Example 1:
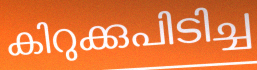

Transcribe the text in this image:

കിറുക്കുപിടിച്ച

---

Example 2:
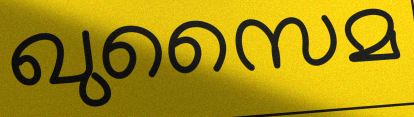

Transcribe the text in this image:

ഖുസൈമ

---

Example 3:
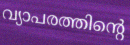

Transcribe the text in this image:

വ്യാപരത്തിന്റെ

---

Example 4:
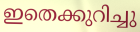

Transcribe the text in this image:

ഇതെക്കുറിച്ചു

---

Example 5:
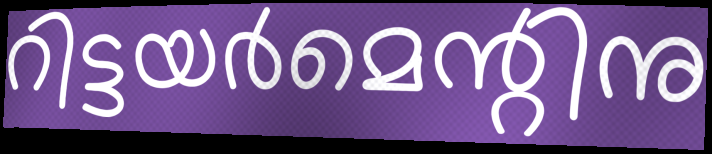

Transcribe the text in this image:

റിട്ടയർമെന്റിനു